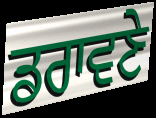
ਡਰਾਵਣੇ